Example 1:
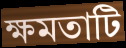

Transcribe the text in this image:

ক্ষমতাটি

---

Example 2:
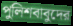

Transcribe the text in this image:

পুলিশবাবুদের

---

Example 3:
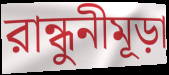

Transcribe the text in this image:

রান্ধুনীমূড়া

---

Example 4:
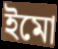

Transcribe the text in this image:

ইমো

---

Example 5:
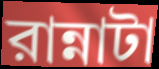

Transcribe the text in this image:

রান্নাটা